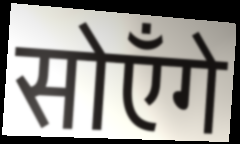
सोएँगे